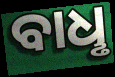
ବାଧୢ